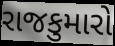
રાજકુમારો